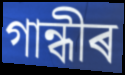
গান্ধীৰ